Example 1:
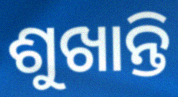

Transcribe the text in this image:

ଶୁଖାନ୍ତି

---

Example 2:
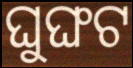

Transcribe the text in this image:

ଘୁଙ୍ଘଟ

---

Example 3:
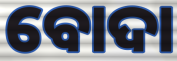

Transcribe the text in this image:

ବୋଦା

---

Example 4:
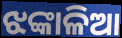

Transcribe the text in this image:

ଝଙ୍କାଳିଆ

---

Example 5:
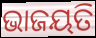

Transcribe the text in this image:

ଭାଜୟତି